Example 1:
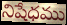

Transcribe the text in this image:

నిషేధము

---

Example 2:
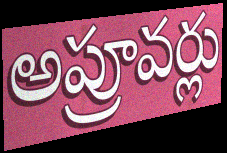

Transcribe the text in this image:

అప్రూవర్లు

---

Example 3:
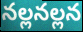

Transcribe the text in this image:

నల్లనల్లన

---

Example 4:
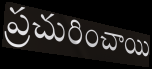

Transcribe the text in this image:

ప్రచురించాయి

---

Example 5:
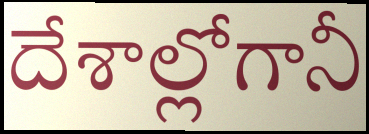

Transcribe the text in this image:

దేశాల్లోగానీ